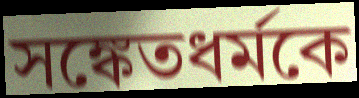
সঙ্কেতধর্মকে